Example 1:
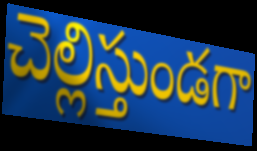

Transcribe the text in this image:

చెల్లిస్తుండగా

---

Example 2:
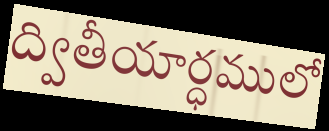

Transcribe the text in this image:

ద్వితీయార్ధములో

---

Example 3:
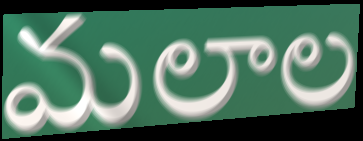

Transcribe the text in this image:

మలాల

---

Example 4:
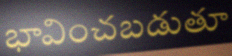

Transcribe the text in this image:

భావించబడుతూ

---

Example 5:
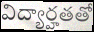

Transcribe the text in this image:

విద్యార్హతతో